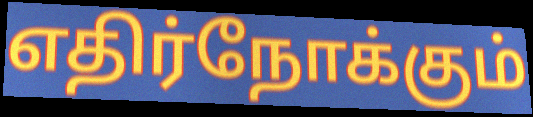
எதிர்நோக்கும்